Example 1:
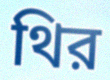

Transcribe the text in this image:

থির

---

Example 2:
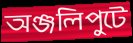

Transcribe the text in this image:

অঞ্জলিপুটে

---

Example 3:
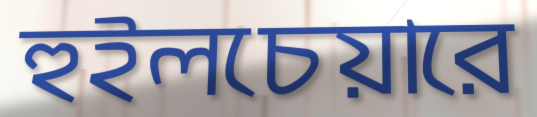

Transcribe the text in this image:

হুইলচেয়ারে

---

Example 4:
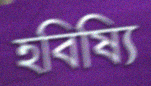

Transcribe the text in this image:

হবিষ্যি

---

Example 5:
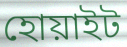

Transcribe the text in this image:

হোয়াইট